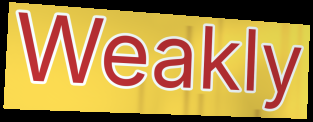
Weakly